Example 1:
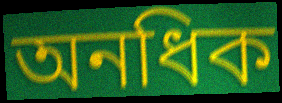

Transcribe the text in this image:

অনধিক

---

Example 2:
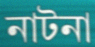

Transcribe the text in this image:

নাটনা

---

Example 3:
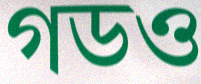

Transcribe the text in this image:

গডও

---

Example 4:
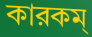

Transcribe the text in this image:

কারকম্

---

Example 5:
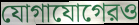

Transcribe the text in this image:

যোগাযোগেরও